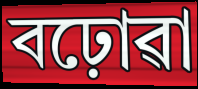
বঢ়োৱা